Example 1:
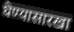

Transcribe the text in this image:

घेण्यासारखा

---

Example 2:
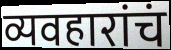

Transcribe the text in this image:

व्यवहारांचं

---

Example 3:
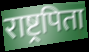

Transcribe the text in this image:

राष्ट्रपिता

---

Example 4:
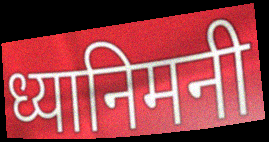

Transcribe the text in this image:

ध्यानिमनी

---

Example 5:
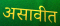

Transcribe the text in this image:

असावीत